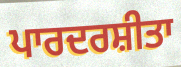
ਪਾਰਦਰਸ਼ੀਤਾ